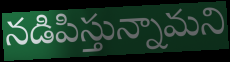
నడిపిస్తున్నామని